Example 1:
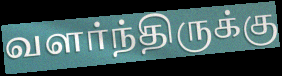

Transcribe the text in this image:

வளர்ந்திருக்கு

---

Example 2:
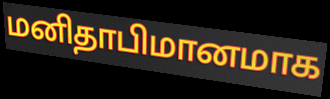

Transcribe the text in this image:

மனிதாபிமானமாக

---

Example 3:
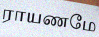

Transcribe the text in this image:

ராயணமே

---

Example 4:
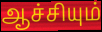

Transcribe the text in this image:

ஆச்சியும்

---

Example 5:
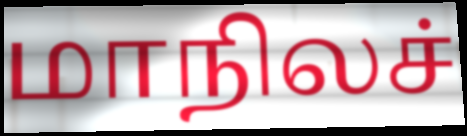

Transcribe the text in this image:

மாநிலச்